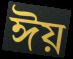
ঈয়